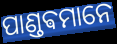
ପାଣ୍ଡଵମାନେ